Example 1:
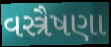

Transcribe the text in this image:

વસ્ત્રૈષણા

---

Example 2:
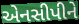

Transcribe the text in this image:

એનસીપીને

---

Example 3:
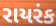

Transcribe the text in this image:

રાયરંક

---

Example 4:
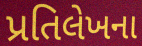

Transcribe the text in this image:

પ્રતિલેખના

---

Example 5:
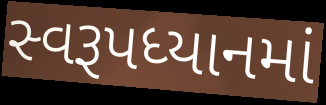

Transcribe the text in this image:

સ્વરૂપધ્યાનમાં